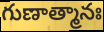
గుణాత్మానః